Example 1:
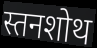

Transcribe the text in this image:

स्तनशोथ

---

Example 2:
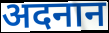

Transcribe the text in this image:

अदनान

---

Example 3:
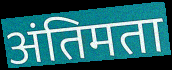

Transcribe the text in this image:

अंतिमता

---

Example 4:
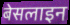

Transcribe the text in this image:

बेसलाइन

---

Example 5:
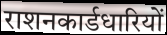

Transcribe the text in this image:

राशनकार्डधारियों